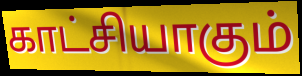
காட்சியாகும்